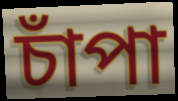
চাঁপা